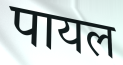
पायल